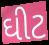
ઘીટ